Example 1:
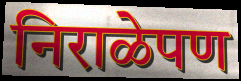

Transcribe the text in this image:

निराळेपण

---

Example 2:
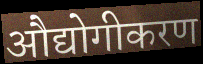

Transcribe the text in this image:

औद्योगीकरण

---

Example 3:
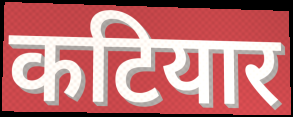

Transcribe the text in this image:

कटियार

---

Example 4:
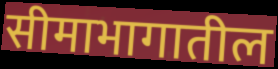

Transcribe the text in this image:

सीमाभागातील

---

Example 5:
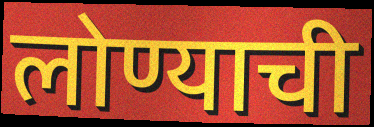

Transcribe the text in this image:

लोण्याची